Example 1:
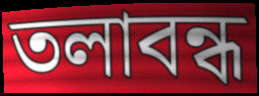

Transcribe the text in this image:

তলাবন্ধ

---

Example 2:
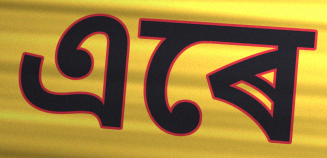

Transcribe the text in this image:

এৰে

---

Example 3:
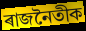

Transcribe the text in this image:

ৰাজনৈতীক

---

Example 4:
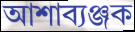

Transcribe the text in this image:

আশাব্যঞ্জক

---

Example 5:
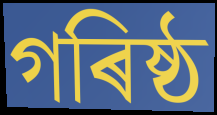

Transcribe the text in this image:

গৰিষ্ঠ